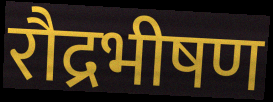
रौद्रभीषण